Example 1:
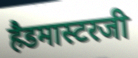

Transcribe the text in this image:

हैडमास्टरजी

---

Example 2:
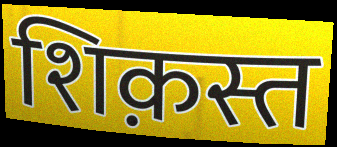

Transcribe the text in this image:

शिक़स्त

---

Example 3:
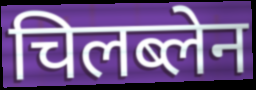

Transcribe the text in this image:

चिलब्लेन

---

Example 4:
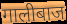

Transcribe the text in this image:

गालीबाज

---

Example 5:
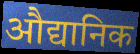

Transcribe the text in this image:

औद्यानिक